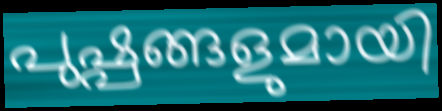
പുഷ്പങ്ങളുമായി